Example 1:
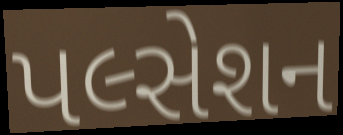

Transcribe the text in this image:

પલ્સેશન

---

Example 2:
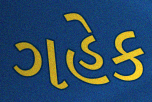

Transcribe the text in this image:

ગહેક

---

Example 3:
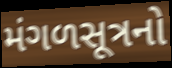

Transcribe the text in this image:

મંગળસૂત્રનો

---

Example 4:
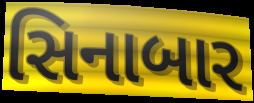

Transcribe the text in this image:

સિનાબાર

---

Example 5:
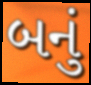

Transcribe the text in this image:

બનું